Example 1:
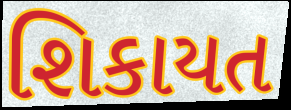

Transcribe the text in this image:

શિકાયત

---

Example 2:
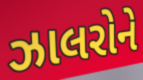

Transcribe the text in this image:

ઝાલરોને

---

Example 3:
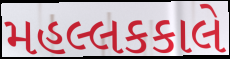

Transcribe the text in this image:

મહલ્લકકાલે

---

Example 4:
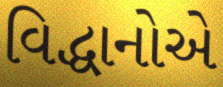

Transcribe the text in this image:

વિદ્ધાનોએ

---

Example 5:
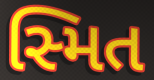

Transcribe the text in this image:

સ્મિત